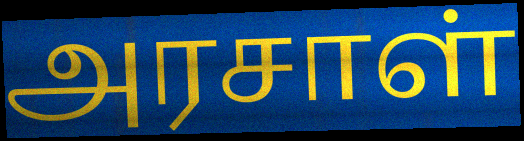
அரசாள்